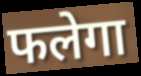
फलेगा